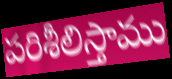
పరిశీలిస్తాము